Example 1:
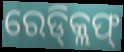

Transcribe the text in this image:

ରେଡ୍କ୍ଲିଫ୍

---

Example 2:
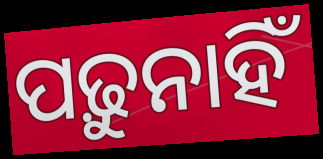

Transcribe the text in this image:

ପଢ଼ୁନାହିଁ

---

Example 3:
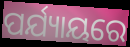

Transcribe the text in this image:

ପର୍ଯ୍ୟାୟରେ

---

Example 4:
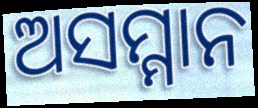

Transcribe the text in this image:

ଅସମ୍ମାନ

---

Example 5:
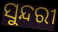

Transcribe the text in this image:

ସୁନ୍ଦରୀ